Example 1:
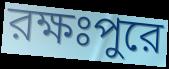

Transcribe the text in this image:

রক্ষঃপুরে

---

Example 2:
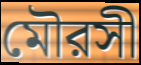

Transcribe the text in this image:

মৌরসী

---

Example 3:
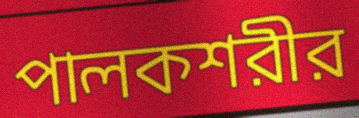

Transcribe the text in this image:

পালকশরীর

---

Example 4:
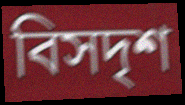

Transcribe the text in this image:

বিসদৃশ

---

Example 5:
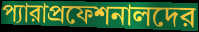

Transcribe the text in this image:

প্যারাপ্রফেশনালদের